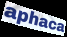
aphaca